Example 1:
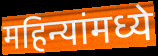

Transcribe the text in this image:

महिन्यांमध्ये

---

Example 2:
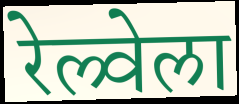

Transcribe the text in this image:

रेल्वेला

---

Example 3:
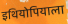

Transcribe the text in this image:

इथियोपियाला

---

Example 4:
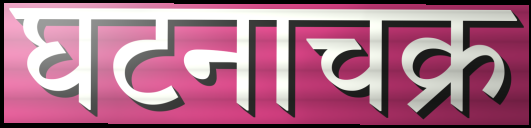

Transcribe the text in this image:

घटनाचक्र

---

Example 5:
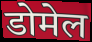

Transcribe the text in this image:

डोमेल